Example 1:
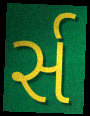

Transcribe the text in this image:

ર્સ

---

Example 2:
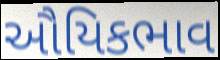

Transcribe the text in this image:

ઔયિકભાવ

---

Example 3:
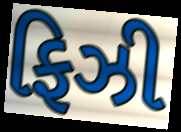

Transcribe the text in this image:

ફિઝી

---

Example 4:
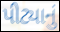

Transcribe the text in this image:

પીટ્યાનું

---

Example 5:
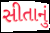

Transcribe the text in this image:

સીતાનું